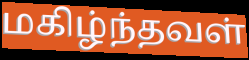
மகிழ்ந்தவள்